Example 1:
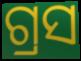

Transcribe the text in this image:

ଗ୍ରସ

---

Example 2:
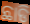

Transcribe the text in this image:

ଛାଡି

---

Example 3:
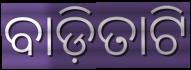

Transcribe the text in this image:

ବାଡ଼ିତାଟି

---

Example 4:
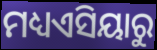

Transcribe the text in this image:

ମଧ୍ୟଏସିୟାରୁ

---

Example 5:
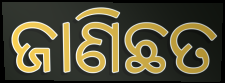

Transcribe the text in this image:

ଜାଣିଛତ